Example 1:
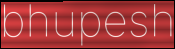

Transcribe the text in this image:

bhupesh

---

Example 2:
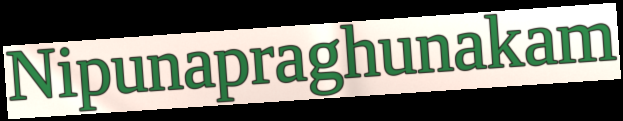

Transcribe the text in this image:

Nipunapraghunakam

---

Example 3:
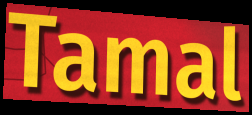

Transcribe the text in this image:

Tamal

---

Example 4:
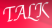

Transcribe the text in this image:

TALK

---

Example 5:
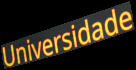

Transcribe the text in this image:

Universidade